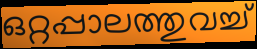
ഒറ്റപ്പാലത്തുവച്ച്